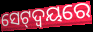
ସେଟ୍‌ଦ୍ଵୟରେ